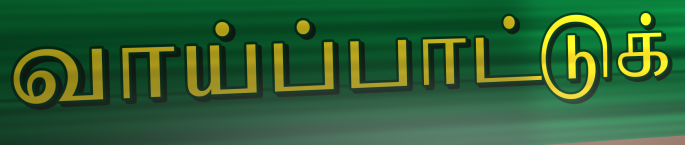
வாய்ப்பாட்டுக்